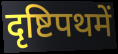
दृष्टिपथमें